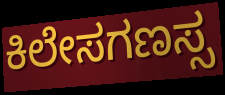
ಕಿಲೇಸಗಣಸ್ಸ